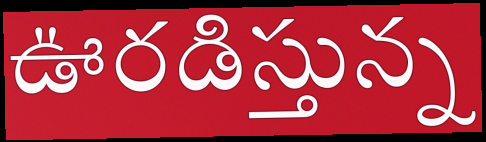
ఊరడిస్తున్న